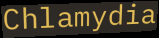
Chlamydia